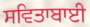
ਸਵਿਤਾਬਾਈ